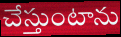
చేస్తుంటాను